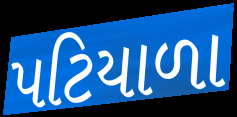
પટિયાળા